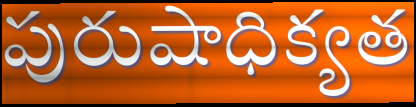
పురుషాధిక్యత